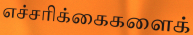
எச்சரிக்கைகளைக்